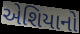
એશિયાનો